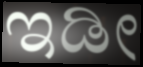
ಇಡೀ